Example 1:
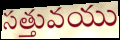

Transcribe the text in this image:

సత్తువయు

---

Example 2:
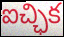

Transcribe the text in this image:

ఐచ్ఛిక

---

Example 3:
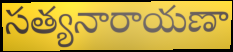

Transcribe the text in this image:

సత్యనారాయణా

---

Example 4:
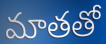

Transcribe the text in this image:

మాతతో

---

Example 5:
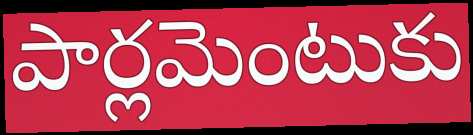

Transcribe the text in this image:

పార్లమెంటుకు